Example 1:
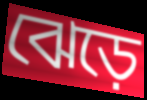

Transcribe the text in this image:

ঝেড়ে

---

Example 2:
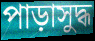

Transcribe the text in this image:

পাড়াসুদ্ধ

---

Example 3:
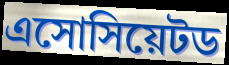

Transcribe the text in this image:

এসোসিয়েটড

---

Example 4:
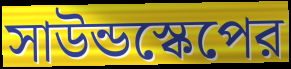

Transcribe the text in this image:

সাউন্ডস্কেপের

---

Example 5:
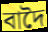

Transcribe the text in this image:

বাদৈ